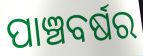
ପାଞ୍ଚବର୍ଷର